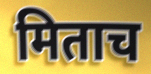
मिताच